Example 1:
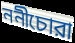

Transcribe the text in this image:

ননীচোরা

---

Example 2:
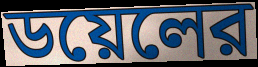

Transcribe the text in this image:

ডয়েলের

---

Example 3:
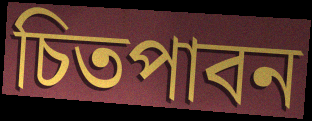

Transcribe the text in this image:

চিতপাবন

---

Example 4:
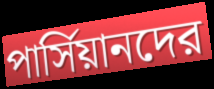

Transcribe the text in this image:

পার্সিয়ানদের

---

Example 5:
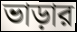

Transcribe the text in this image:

ভাড়ার